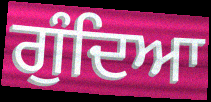
ਗੁੰਦਿਆ